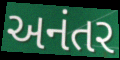
અનંતર